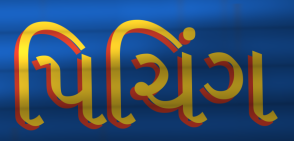
પિચિંગ